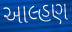
આલ્હણ